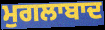
ਮੁਗਲਾਬਾਦ